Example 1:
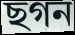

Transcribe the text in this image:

ছগন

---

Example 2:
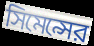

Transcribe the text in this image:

সিমেন্সের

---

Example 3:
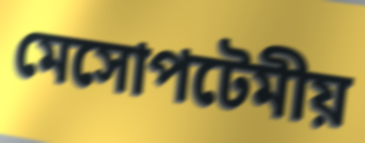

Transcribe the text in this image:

মেসোপটেমীয়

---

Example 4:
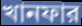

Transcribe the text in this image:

খানফার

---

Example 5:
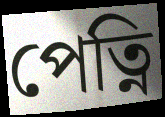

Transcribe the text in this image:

পেত্নি